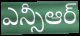
ఎన్సీఆర్